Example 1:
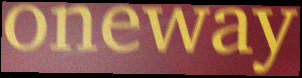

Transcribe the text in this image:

oneway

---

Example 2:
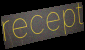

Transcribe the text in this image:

recept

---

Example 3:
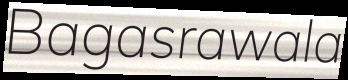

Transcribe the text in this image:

Bagasrawala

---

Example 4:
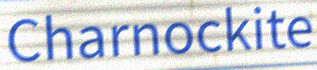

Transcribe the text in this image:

Charnockite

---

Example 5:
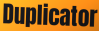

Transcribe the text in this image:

Duplicator